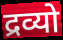
द्रव्यो